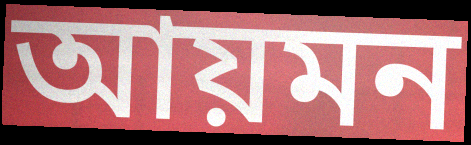
আয়মন